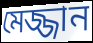
মেজ্জান